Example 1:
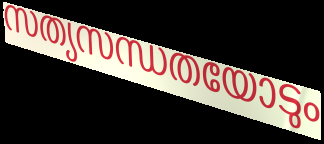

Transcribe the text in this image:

സത്യസന്ധതയോടും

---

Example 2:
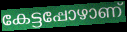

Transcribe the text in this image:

കേട്ടപ്പോഴാണ്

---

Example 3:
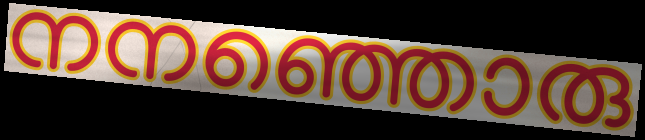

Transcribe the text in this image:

നനഞ്ഞൊരു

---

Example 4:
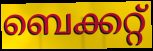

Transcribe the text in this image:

ബെക്കറ്റ്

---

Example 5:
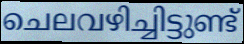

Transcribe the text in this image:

ചെലവഴിച്ചിട്ടുണ്ട്